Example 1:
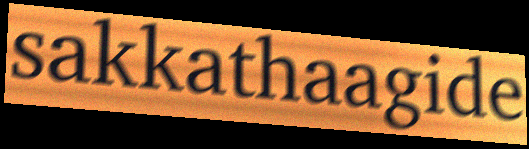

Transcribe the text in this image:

sakkathaagide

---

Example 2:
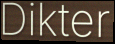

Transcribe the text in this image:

Dikter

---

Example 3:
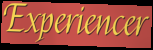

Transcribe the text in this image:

Experiencer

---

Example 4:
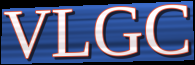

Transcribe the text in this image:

VLGC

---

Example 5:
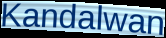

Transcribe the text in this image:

Kandalwan